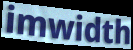
imwidth